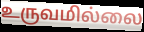
உருவமில்லை